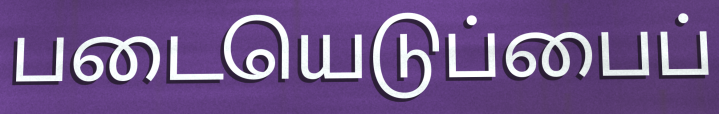
படையெடுப்பைப்